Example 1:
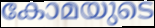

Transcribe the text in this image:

കോമയുടെ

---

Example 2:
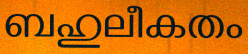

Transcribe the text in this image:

ബഹുലീകതം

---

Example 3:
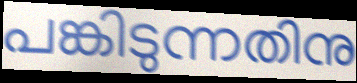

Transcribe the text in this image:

പങ്കിടുന്നതിനു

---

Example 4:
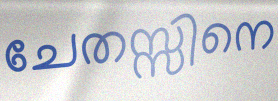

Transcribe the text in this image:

ചേതസ്സിനെ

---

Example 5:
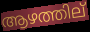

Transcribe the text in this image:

ആഴത്തില്